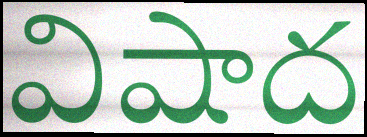
విషాద